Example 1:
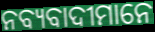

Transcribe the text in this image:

ନବ୍ୟବାଦୀମାନେ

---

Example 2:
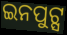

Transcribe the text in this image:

ଇନପୁଟ୍ସ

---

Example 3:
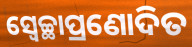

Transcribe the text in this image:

ସ୍ୱେଚ୍ଛାପ୍ରଣୋଦିତ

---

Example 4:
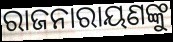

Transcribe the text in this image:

ରାଜନାରାୟଣଙ୍କୁ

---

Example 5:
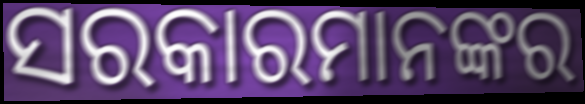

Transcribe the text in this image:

ସରକାରମାନଙ୍କର